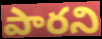
పారని